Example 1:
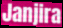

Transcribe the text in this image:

Janjira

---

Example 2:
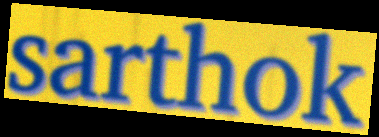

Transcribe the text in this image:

sarthok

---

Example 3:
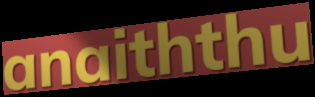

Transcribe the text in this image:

anaiththu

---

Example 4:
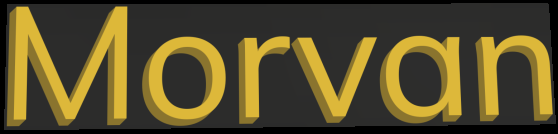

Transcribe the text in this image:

Morvan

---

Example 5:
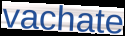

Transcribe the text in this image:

vachate